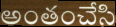
అంతంచేసి